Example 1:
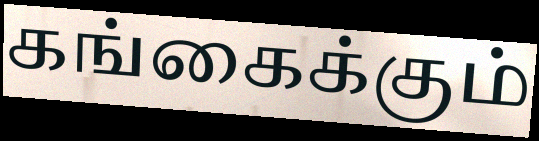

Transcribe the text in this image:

கங்கைக்கும்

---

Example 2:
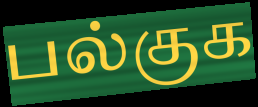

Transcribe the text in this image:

பல்குக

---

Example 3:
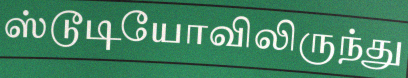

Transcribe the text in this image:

ஸ்டூடியோவிலிருந்து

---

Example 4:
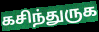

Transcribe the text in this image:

கசிந்துருக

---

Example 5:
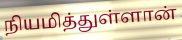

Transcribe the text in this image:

நியமித்துள்ளான்